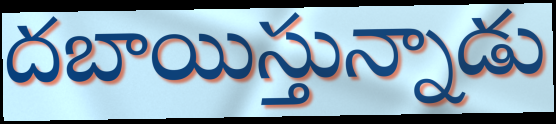
దబాయిస్తున్నాడు